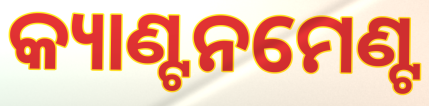
କ୍ୟାଣ୍ଟନମେଣ୍ଟ